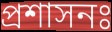
প্ৰশাসনঃ